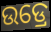
ଉଡ୍ରେ